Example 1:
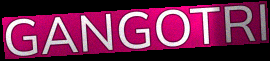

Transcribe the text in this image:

GANGOTRI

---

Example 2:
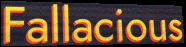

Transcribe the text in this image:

Fallacious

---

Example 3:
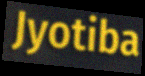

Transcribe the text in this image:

Jyotiba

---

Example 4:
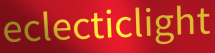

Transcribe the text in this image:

eclecticlight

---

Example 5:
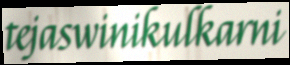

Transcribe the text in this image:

tejaswinikulkarni